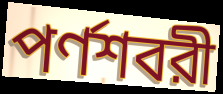
পর্ণশবরী